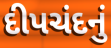
દીપચંદનું